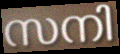
സനി